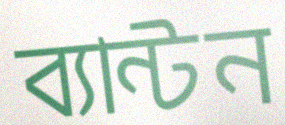
ব্যান্টন